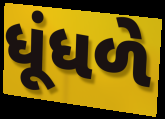
ધૂંધળે